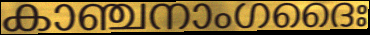
കാഞ്ചനാംഗദൈഃ